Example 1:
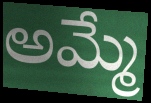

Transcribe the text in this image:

అమ్మే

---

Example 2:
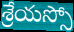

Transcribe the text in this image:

శ్రేయస్సో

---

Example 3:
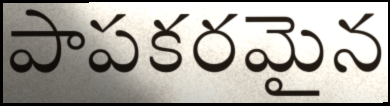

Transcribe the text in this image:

పాపకరమైన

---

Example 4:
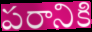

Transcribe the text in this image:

పరానికి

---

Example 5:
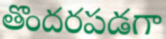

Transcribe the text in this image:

తొందరపడగా